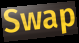
Swap